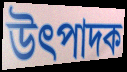
উৎপাদক